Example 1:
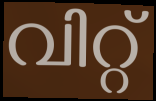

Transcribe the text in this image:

വിറ്റ്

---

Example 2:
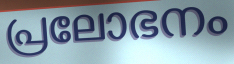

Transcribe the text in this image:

പ്രലോഭനം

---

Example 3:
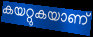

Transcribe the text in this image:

കയറ്റുകയാണ്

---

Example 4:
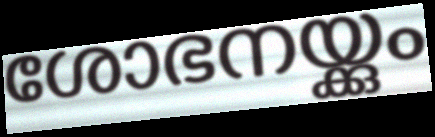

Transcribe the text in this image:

ശോഭനയ്ക്കും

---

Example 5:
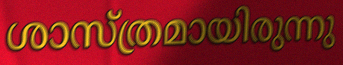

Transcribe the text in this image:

ശാസ്ത്രമായിരുന്നു